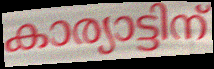
കാര്യാട്ടിന്